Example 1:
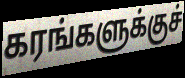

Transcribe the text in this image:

கரங்களுக்குச்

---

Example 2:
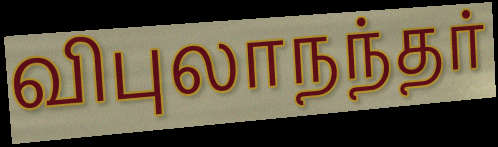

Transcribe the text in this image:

விபுலாநந்தர்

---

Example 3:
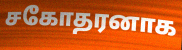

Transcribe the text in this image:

சகோதரனாக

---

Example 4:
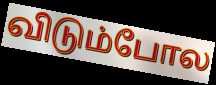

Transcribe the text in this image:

விடும்போல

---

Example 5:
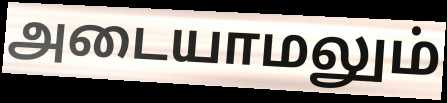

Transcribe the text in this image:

அடையாமலும்